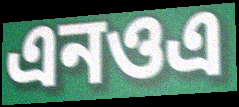
এনওএ